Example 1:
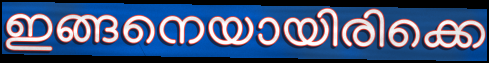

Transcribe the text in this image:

ഇങ്ങനെയായിരിക്കെ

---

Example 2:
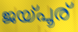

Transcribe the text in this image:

ജയ്പൂര്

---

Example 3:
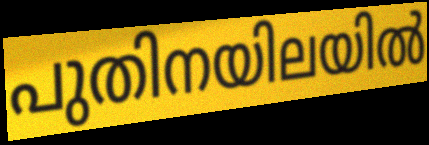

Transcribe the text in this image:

പുതിനയിലയിൽ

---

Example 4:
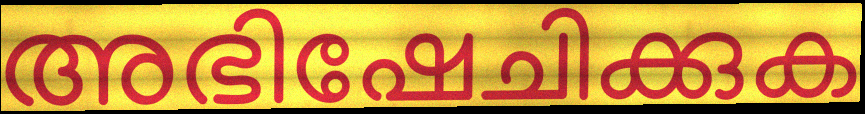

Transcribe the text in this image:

അഭിഷേചിക്കുക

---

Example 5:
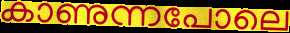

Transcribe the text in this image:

കാണുന്നപോലെ